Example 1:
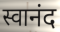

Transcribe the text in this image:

स्वानंद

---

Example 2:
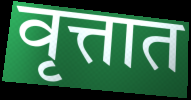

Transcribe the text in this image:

वृत्तात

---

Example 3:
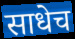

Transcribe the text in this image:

साधेच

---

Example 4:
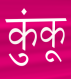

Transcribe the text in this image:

कुंकू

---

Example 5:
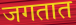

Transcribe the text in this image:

जगतात